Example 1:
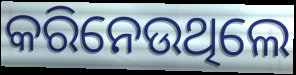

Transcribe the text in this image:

କରିନେଉଥିଲେ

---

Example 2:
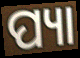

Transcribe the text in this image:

ପ୍ୟା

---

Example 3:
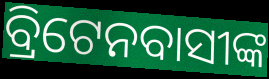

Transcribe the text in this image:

ବ୍ରିଟେନବାସୀଙ୍କ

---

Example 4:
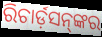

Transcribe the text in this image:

ରିଚାର୍ଡ଼ସନ୍‌ଙ୍କର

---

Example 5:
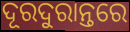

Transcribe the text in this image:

ଦୂରଦୁରାନ୍ତରେ